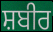
ਸ਼ਬੀਰ